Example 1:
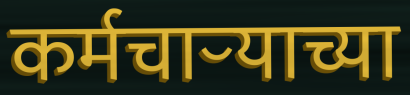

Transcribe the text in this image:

कर्मचाऱ्याच्या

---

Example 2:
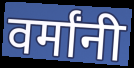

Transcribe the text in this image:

वर्मांनी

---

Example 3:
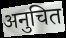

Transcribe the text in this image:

अनुचित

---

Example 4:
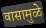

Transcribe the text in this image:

वासामुळे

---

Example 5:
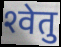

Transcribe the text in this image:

श्वेतु